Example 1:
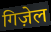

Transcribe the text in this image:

गिज़ेल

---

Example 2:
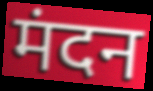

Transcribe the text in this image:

मंदन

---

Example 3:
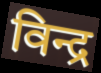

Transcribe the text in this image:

विन्द्र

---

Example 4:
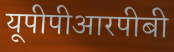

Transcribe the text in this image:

यूपीपीआरपीबी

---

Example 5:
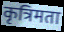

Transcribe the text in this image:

कृत्रिमता